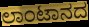
ಲಾಂಟಾನದ